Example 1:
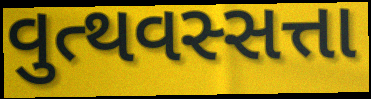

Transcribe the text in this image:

વુત્થવસ્સત્તા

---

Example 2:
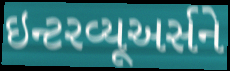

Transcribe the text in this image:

ઇન્ટરવ્યૂઅર્સને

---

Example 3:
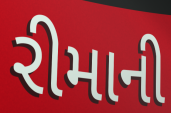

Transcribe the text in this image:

રીમાની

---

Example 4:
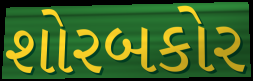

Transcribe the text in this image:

શોરબકોર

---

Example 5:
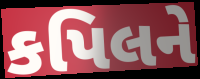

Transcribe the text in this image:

કપિલને